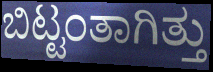
ಬಿಟ್ಟಂತಾಗಿತ್ತು